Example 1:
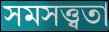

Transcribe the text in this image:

সমসত্ত্বতা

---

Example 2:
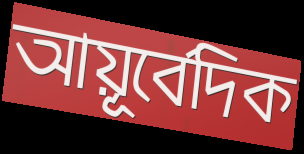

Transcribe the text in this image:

আয়ূর্বেদিক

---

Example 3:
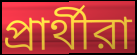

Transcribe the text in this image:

প্রার্থীরা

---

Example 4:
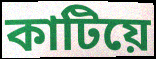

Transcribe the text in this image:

কাটিয়ে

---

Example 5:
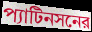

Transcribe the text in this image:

প্যাটিনসনের